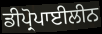
ਡੀਪ੍ਰੋਪਾਈਲੀਨ